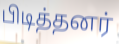
பிடித்தனர்